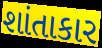
શાંતાકાર